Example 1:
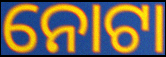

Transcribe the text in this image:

ନୋଟା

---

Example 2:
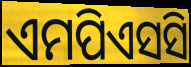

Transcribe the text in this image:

ଏମପିଏସସି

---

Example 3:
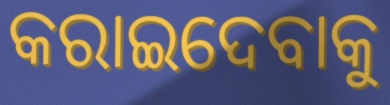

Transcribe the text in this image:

କରାଇଦେବାକୁ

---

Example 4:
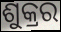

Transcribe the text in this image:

ଶୁକ୍ରର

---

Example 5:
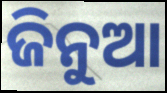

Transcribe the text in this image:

ଜିନୁଆ